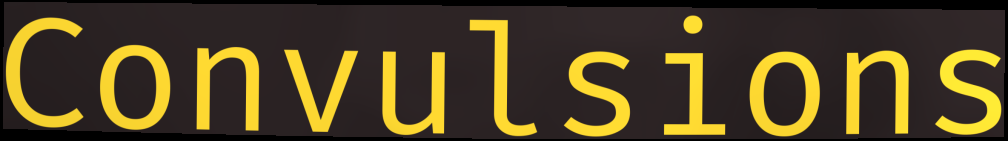
Convulsions